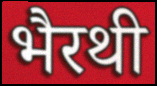
भैरथी